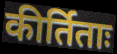
कीर्तिताः